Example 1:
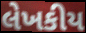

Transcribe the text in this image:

લેખકીય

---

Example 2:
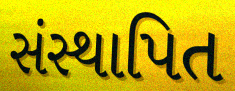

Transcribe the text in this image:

સંસ્થાપિત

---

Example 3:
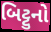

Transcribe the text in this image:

બિટ્ટુનો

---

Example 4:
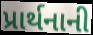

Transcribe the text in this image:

પ્રાર્થનાની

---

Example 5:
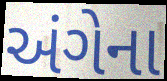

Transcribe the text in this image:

અંગેના